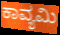
ಕಾವ್ಯಮಿ